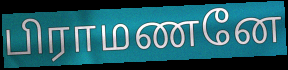
பிராமணனே